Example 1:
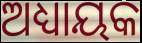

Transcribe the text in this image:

ଅଧ୍ୟାୟକ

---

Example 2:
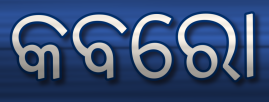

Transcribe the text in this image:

କବରୋ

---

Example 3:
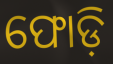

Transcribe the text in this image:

ଫୋଡ଼ି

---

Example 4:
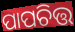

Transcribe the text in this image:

ପାପଚିତ୍ତ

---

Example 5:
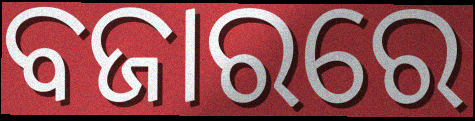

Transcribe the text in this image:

ବଜାରରେ